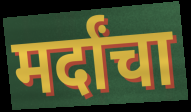
मर्दांचा